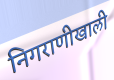
निगराणीखाली